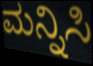
ಮನ್ನಿಸಿ